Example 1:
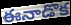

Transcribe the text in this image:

ఈనాడొక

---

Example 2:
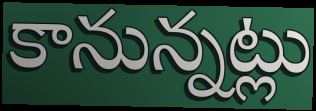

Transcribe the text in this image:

కానున్నట్లు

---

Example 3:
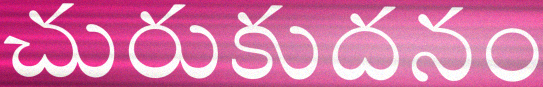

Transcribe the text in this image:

చురుకుదనం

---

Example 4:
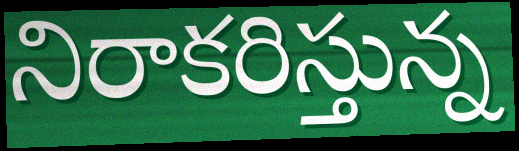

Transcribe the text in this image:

నిరాకరిస్తున్న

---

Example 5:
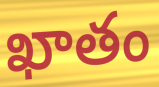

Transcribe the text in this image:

ఖాతం